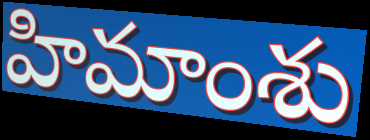
హిమాంశు